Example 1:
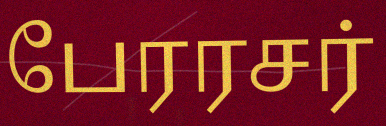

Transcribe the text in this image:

பேரரசர்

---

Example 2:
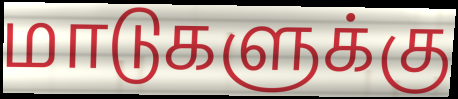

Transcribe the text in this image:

மாடுகளுக்கு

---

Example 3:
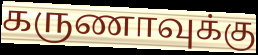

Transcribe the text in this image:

கருணாவுக்கு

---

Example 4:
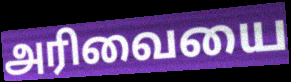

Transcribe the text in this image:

அரிவையை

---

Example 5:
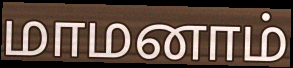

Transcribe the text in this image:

மாமனாம்